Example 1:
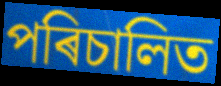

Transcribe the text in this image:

পৰিচালিত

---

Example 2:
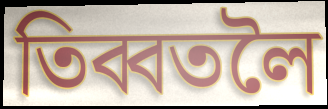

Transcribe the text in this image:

তিব্বতলৈ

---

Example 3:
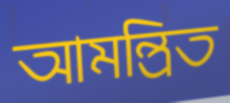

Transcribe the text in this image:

আমন্ত্ৰিত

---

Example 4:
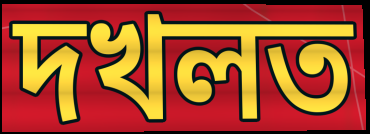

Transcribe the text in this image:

দখলত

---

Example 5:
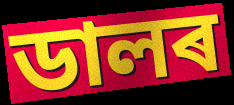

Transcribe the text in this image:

ডালৰ